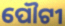
ପୌଟୀ